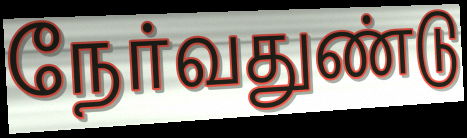
நேர்வதுண்டு